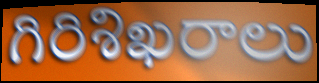
గిరిశిఖరాలు